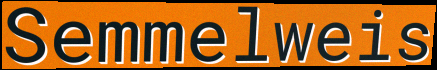
Semmelweis